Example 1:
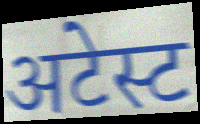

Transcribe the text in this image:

अटेस्ट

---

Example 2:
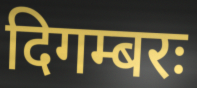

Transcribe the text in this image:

दिगम्बरः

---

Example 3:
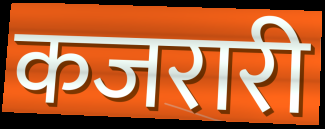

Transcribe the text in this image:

कजरारी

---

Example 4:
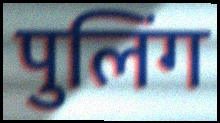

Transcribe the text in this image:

पुलिंग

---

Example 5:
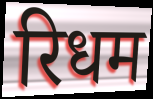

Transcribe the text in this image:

रिधम